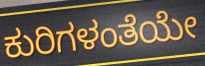
ಕುರಿಗಳಂತೆಯೇ